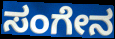
ಸಂಗೇನ